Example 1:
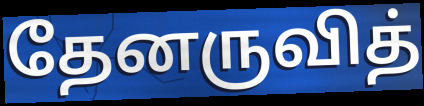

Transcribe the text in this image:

தேனருவித்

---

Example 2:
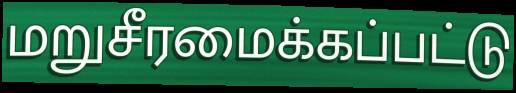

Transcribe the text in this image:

மறுசீரமைக்கப்பட்டு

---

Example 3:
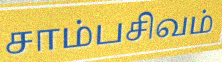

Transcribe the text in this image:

சாம்பசிவம்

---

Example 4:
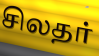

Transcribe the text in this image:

சிலதர்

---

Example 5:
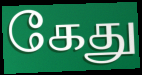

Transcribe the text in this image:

கேது